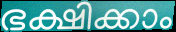
ഭക്ഷിക്കാം